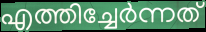
എത്തിച്ചേർന്നത്